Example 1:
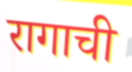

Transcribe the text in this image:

रागाची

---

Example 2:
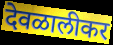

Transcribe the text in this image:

देवळालीकर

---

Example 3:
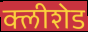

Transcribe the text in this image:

क्लीशेड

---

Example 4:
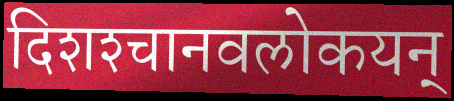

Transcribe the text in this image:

दिशश्चानवलोकयन्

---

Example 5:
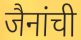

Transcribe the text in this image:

जैनांची